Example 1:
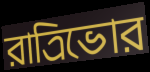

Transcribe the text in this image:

রাত্রিভোর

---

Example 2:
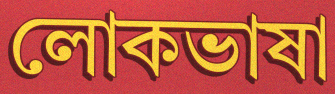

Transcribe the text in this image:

লোকভাষা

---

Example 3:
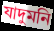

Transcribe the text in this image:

যাদুমনি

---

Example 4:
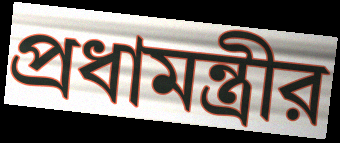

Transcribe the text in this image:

প্রধামন্ত্রীর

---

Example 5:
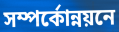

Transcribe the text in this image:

সম্পর্কোন্নয়নে